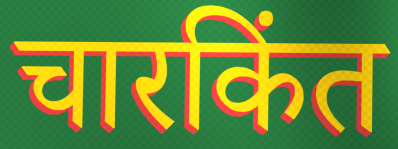
चारकिंत